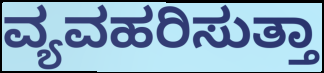
ವ್ಯವಹರಿಸುತ್ತಾ